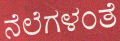
ನೆಲೆಗಳಂತೆ